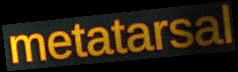
metatarsal